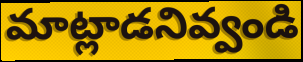
మాట్లాడనివ్వండి